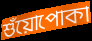
শুঁয়োপোকা